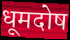
धूमदोष